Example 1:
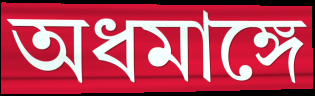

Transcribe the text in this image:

অধমাঙ্গে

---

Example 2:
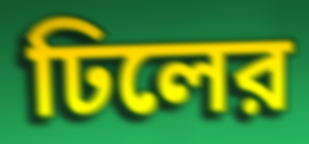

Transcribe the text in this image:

ঢিলের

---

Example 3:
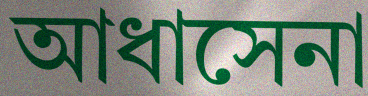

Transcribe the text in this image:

আধাসেনা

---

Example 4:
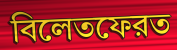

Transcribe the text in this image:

বিলেতফেরত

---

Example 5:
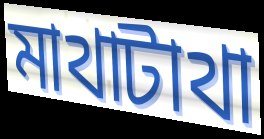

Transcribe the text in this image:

মাথাটাথা